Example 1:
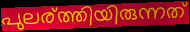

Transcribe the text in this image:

പുലര്ത്തിയിരുന്നത്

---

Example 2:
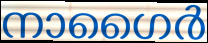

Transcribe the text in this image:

നാഗൈർ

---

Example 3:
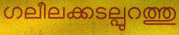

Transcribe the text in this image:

ഗലീലക്കടല്പുറത്തു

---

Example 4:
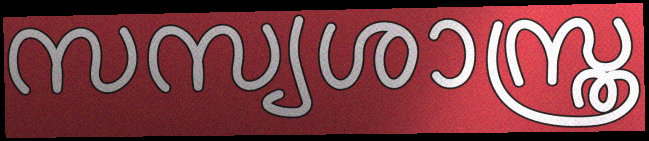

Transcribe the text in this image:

സസ്യശാസ്ത്ര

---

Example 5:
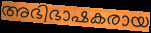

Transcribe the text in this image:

അഭിഭാഷകരായ